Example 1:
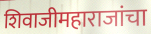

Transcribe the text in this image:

शिवाजीमहाराजांचा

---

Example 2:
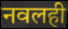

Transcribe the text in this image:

नवलही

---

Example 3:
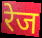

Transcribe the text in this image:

रेज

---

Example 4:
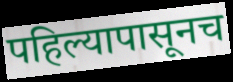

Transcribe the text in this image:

पहिल्यापासूनच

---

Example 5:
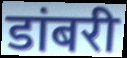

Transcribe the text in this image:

डांबरी